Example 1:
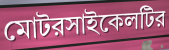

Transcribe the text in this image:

মোটরসাইকেলটির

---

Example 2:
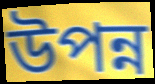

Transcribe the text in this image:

উপন্ন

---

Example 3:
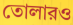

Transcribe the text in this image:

তোলারও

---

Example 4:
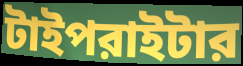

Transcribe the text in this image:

টাইপরাইটার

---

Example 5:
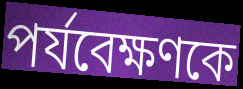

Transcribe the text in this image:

পর্যবেক্ষণকে